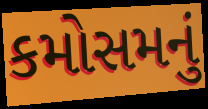
કમોસમનું